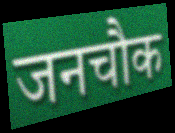
जनचौक